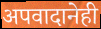
अपवादानेही